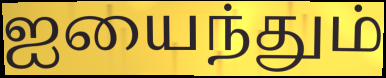
ஐயைந்தும்